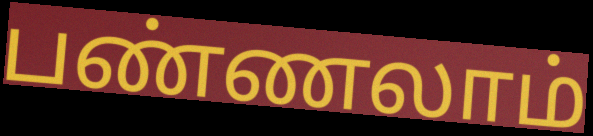
பண்ணலாம்